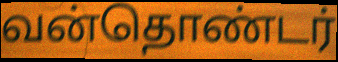
வன்தொண்டர்